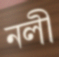
নলী